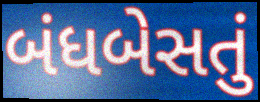
બંધબેસતું